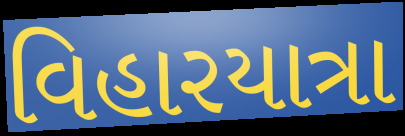
વિહારયાત્રા